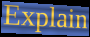
Explain